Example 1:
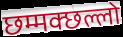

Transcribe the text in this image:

छम्मक्छल्लो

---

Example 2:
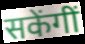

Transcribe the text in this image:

सकेंगीं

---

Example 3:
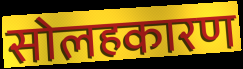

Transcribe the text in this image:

सोलहकारण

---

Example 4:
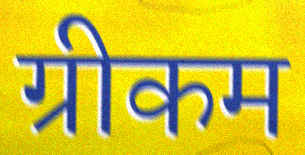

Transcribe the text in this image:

ग्रीकम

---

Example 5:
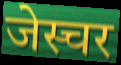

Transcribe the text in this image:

जेस्चर